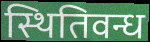
स्थितिवन्ध